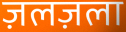
ज़लज़ला